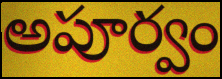
అపూర్వం